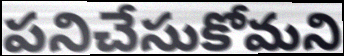
పనిచేసుకోమని